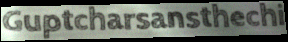
Guptcharsansthechi